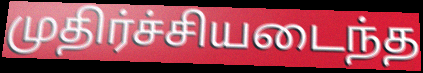
முதிர்ச்சியடைந்த